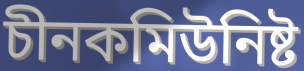
চীনকমিউনিষ্ট